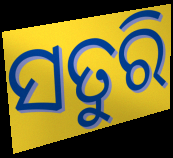
ସତୁରି